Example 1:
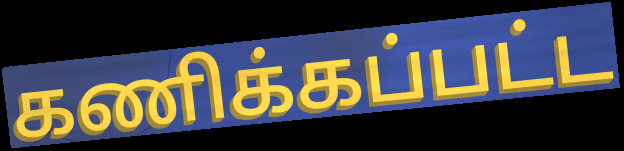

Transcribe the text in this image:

கணிக்கப்பட்ட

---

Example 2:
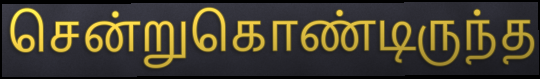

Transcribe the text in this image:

சென்றுகொண்டிருந்த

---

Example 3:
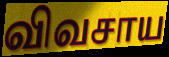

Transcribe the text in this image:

விவசாய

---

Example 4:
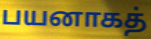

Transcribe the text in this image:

பயனாகத்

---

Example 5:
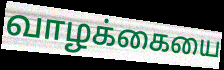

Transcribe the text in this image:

வாழக்கையை